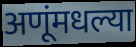
अणूंमधल्या